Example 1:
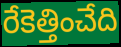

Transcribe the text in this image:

రేకెత్తించేది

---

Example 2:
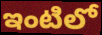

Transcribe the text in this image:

ఇంటిలో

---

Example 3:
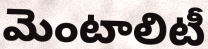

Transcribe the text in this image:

మెంటాలిటీ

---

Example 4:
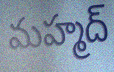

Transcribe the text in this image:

మహ్మద్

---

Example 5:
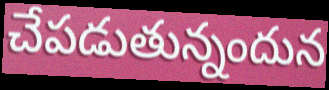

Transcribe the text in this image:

చేపడుతున్నందున